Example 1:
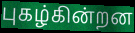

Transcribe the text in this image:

புகழ்கின்றன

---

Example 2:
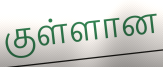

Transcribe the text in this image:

குள்ளான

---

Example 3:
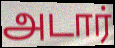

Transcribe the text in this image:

அடார்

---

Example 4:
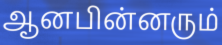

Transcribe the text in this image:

ஆனபின்னரும்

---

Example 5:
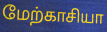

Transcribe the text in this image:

மேற்காசியா